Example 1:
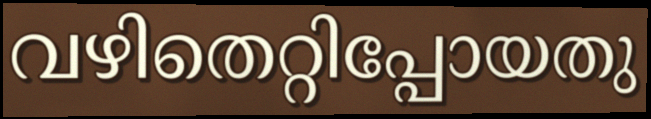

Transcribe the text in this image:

വഴിതെറ്റിപ്പോയതു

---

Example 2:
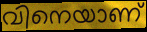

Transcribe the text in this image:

വിനെയാണ്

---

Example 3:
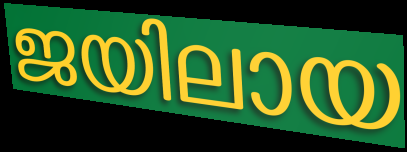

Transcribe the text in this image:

ജയിലായ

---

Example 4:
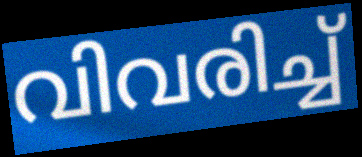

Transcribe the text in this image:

വിവരിച്ച്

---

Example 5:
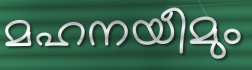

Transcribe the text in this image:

മഹനയീമും